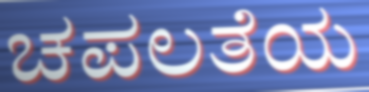
ಚಪಲತೆಯ